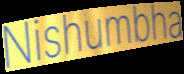
Nishumbha